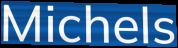
Michels